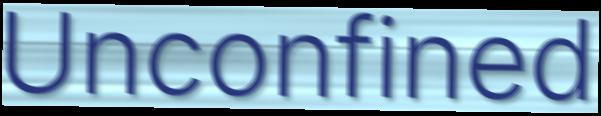
Unconfined